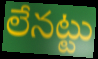
లేనట్టు